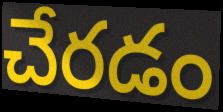
చేరడం